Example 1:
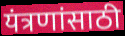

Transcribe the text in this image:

यंत्रणांसाठी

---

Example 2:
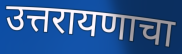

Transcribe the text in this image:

उत्तरायणाचा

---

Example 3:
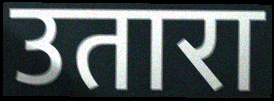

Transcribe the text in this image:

उतारा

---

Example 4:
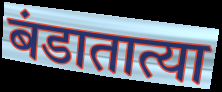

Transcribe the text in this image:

बंडातात्या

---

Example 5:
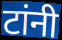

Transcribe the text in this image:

टांनी